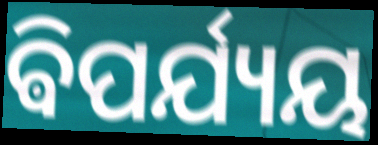
ଵିପର୍ଯ୍ୟୟ